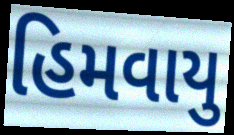
હિમવાયુ